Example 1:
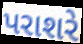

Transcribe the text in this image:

પરાશરે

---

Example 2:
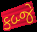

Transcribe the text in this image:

કબ્જે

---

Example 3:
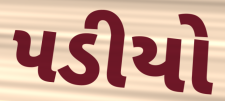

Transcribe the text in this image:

પડીયો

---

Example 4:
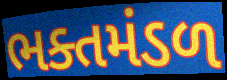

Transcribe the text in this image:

ભક્તમંડળ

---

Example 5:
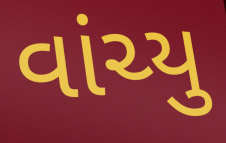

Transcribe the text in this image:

વાંચ્યુ